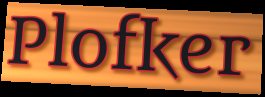
Plofker